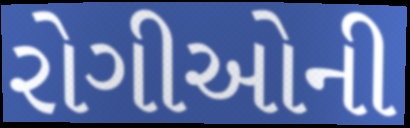
રોગીઓની